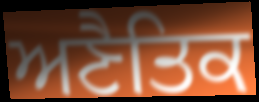
ਅਣੈਤਿਕ